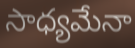
సాధ్యమేనా